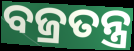
ବଜ୍ରତନ୍ତ୍ର